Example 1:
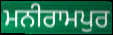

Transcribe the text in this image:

ਮਨੀਰਾਮਪੁਰ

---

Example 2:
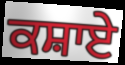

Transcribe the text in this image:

ਕਸ਼ਾਏ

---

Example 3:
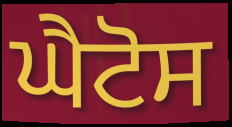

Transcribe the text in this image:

ਘੈਟੋਸ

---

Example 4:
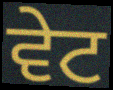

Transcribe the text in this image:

ਵੇਟ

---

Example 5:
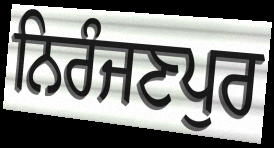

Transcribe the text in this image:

ਨਿਰੰਜਣਪੁਰ